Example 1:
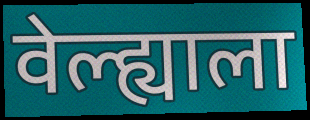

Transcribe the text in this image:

वेल्ह्याला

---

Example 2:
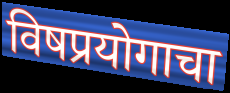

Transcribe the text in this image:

विषप्रयोगाचा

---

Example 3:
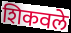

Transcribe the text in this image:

शिकवले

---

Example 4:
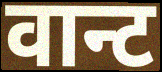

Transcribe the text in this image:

वान्ट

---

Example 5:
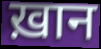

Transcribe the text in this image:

ख़ान